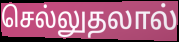
செல்லுதலால்